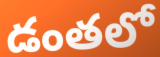
డంతలో